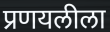
प्रणयलीला